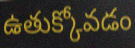
ఉతుక్కోవడం